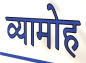
व्यामोह